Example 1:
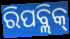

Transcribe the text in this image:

ରିପବ୍ଲିକ୍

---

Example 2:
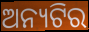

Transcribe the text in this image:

ଅନ୍ୟଟିର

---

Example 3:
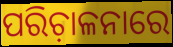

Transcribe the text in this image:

ପରିଚ଼ାଳନାରେ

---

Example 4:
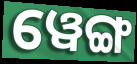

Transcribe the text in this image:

ୱେଙ୍ଗ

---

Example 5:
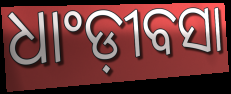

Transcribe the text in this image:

ଧାଂଡ଼ୀବସା